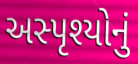
અસ્પૃશ્યોનું